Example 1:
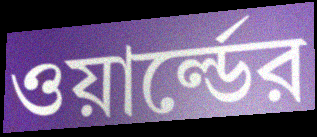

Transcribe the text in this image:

ওয়ার্ল্ডের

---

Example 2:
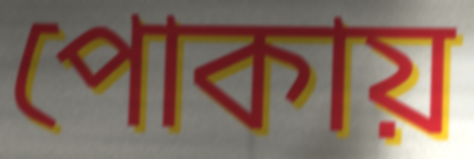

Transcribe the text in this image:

পোকায়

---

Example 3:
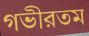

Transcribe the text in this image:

গভীরতম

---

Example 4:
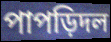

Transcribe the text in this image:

পাপড়িদল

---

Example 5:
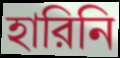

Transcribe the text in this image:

হারিনি